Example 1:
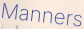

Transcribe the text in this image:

Manners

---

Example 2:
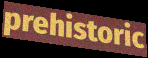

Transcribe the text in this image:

prehistoric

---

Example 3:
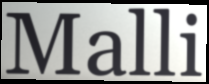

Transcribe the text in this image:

Malli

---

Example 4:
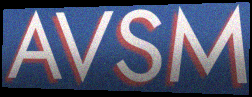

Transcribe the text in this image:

AVSM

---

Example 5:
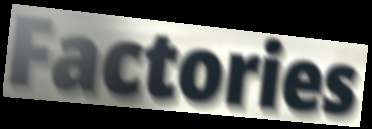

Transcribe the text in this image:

Factories